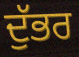
ਦੁੱਭਰ